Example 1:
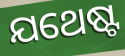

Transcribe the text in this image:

ଯଥେଷ୍ଟ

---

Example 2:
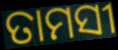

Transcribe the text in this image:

ତାମସୀ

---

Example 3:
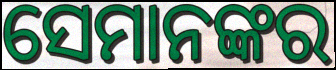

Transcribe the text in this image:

ସେମାନଙ୍କର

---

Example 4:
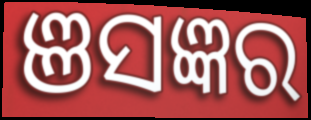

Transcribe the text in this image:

ଞସଜ୍ଞର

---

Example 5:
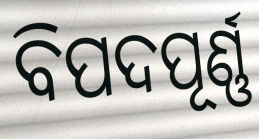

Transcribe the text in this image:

ବିପଦପୂର୍ଣ୍ଣ